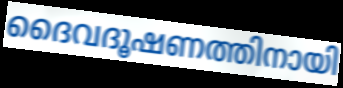
ദൈവദൂഷണത്തിനായി